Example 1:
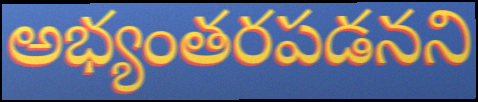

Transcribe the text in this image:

అభ్యంతరపడనని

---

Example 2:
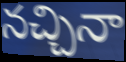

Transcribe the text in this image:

నచ్చినా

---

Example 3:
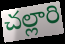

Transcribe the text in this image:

చల్లారి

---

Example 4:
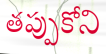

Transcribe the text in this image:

తప్పుకోని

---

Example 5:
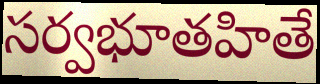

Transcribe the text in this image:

సర్వభూతహితే